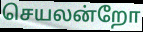
செயலன்றோ